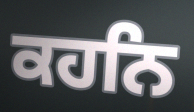
ਕਹਨਿ